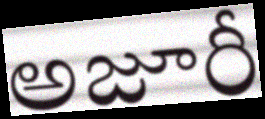
అజూరీ